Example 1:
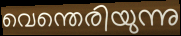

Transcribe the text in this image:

വെന്തെരിയുന്നു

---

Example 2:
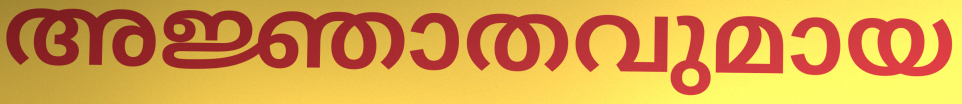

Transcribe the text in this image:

അജ്ഞാതവുമായ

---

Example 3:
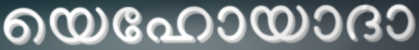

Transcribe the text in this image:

യെഹോയാദാ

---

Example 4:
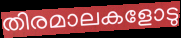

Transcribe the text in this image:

തിരമാലകളോടു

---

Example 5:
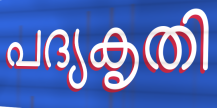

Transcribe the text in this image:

പദ്യകൃതി